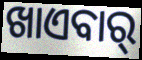
ଖାଏବାର୍